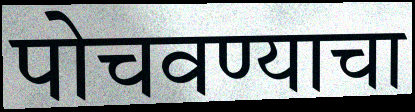
पोचवण्याचा